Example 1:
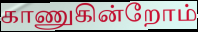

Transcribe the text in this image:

காணுகின்றோம்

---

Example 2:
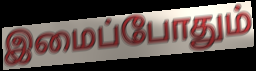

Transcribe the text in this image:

இமைப்போதும்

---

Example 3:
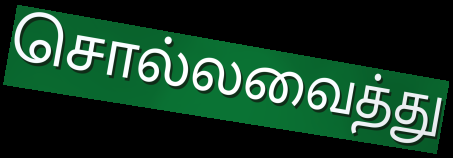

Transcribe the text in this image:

சொல்லவைத்து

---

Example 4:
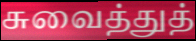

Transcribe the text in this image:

சுவைத்துத்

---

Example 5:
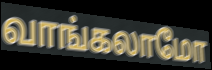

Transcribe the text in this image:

வாங்கலாமோ